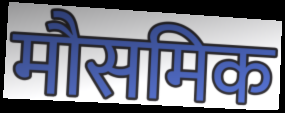
मौसमिक